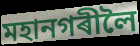
মহানগৰীলৈ